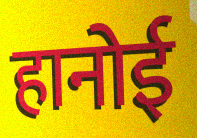
हानोई